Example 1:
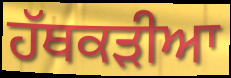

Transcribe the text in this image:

ਹੱਥਕੜੀਆ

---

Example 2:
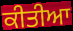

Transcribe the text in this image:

ਕੀਤੀਆ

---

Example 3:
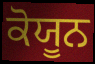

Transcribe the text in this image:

ਕੋਯੂਨ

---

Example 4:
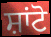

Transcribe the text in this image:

ਸ਼ਾਂਟੋ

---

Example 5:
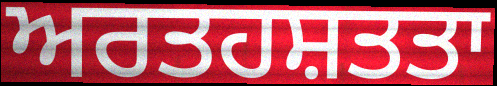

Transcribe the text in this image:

ਅਰਤਹਸ਼ਤਤਾ